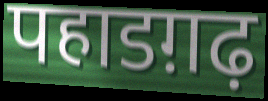
पहाडग़ढ़